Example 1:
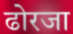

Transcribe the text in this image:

ढोरजा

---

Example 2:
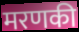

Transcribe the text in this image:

मरणकी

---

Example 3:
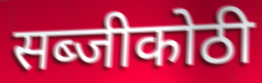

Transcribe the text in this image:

सब्जीकोठी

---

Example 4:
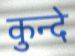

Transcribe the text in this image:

कुन्दे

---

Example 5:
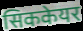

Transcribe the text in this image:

सिककेयर